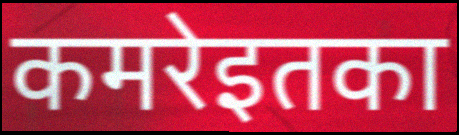
कमरेइतका